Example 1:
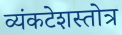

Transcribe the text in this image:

व्यंकटेशस्तोत्र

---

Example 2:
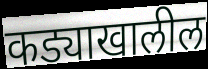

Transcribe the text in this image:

कड्याखालील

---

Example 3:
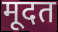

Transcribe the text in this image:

मूदत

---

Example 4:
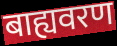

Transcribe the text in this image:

बाह्यवरण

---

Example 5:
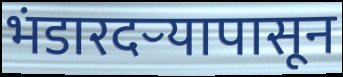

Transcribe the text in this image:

भंडारदऱ्यापासून